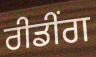
ਰੀਡੀਂਗ